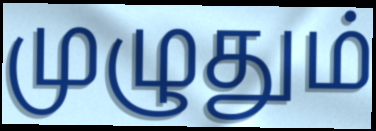
முழுதும்